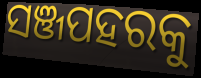
ସଞ୍ଜପହରକୁ